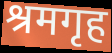
श्रमगृह